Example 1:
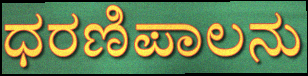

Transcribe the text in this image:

ಧರಣಿಪಾಲನು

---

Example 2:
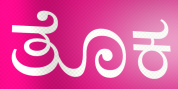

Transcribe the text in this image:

ತೊಕ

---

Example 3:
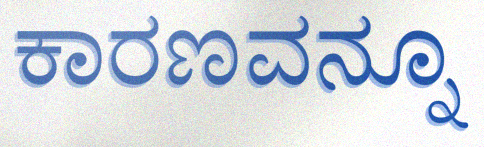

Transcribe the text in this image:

ಕಾರಣವನ್ನೂ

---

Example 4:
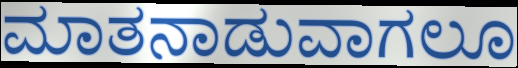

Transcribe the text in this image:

ಮಾತನಾಡುವಾಗಲೂ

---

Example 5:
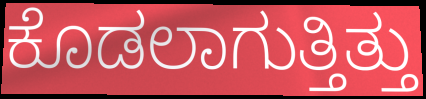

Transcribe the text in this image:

ಕೊಡಲಾಗುತ್ತಿತ್ತು